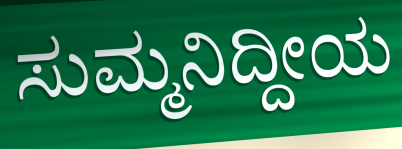
ಸುಮ್ಮನಿದ್ದೀಯ